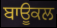
ਬਾਊਕਲ